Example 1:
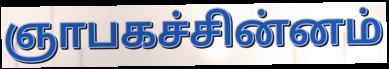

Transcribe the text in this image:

ஞாபகச்சின்னம்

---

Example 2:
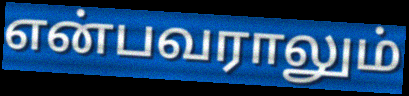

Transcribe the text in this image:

என்பவராலும்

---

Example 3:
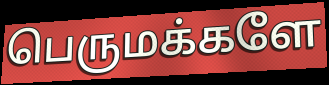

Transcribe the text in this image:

பெருமக்களே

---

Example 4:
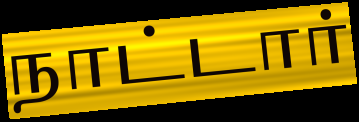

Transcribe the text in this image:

நாட்டார்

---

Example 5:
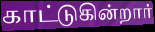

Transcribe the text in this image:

காட்டுகின்றார்